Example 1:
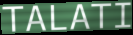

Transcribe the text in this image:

TALATI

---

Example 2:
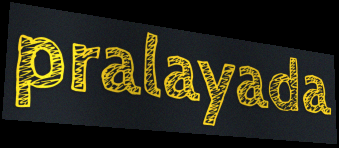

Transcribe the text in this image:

pralayada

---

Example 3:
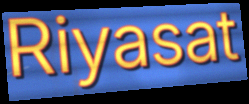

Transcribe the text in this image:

Riyasat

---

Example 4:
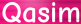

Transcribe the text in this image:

Qasim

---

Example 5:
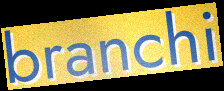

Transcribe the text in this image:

branchi